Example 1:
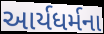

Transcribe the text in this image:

આર્યધર્મના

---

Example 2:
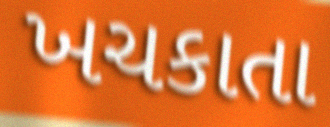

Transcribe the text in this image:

ખચકાતા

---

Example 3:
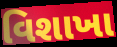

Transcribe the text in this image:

વિશાખા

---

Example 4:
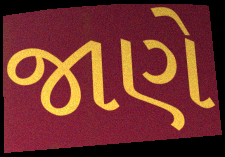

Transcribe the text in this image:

જાણે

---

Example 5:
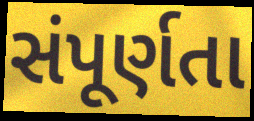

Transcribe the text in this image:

સંપૂર્ણતા